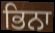
ਭਿਨਾ